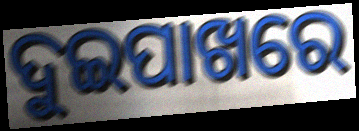
ଦୁଇପାଖରେ